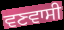
ਵਣਵਾਸੀ